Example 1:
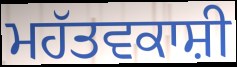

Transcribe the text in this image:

ਮਹੱਤਵਕਾਸ਼ੀ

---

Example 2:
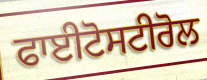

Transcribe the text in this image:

ਫਾਈਟੋਸਟੀਰੋਲ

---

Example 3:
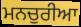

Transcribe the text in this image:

ਮਨਚੁਰੀਆ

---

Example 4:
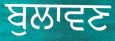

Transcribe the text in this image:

ਬੁਲਾਵਣ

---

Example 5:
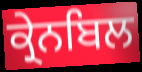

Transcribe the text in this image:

ਕ੍ਰੇਨਬਿਲ